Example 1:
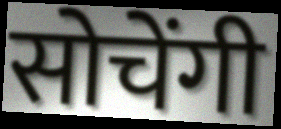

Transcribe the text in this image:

सोचेंगी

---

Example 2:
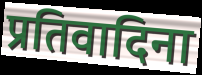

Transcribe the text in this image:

प्रतिवादिना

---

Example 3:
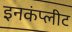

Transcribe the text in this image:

इनकंप्लीट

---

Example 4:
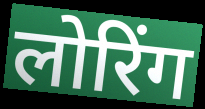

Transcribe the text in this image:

लोरिंग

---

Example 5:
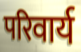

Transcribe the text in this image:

परिवार्य